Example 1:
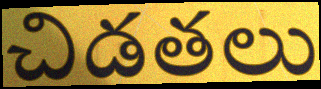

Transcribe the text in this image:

చిడతలు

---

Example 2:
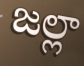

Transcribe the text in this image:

జల్లా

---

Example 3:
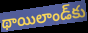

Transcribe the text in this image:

థాయిలాండ్‌కు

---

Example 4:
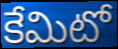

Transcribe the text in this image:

కేమిటో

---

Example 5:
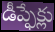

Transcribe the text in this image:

డీప్ఫేక్లు